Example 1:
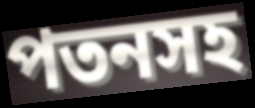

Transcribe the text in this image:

পতনসহ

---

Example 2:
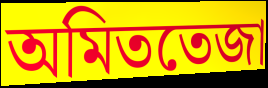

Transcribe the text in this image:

অমিততেজা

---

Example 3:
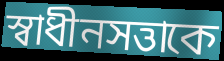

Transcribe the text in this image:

স্বাধীনসত্তাকে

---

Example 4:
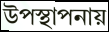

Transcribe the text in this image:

উপস্থাপনায়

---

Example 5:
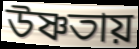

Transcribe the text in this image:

উষ্ণতায়